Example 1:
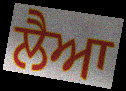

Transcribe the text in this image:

ਲੈਆ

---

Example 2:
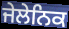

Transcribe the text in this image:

ਜੇਲੇਨਿਕ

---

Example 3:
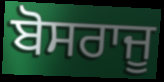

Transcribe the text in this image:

ਬੋਸਰਾਜੂ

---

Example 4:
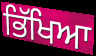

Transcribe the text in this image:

ਭਿੱਖਿਆ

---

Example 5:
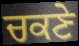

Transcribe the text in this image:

ਚਕਣੇ